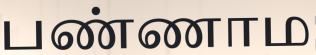
பண்ணாம